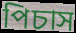
পিচাস